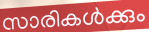
സാരികൾക്കും